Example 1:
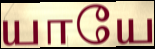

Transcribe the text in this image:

யாயே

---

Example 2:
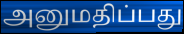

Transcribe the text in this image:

அனுமதிப்பது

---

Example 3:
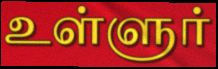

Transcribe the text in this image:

உள்ளுர்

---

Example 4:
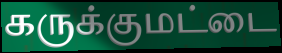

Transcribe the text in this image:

கருக்குமட்டை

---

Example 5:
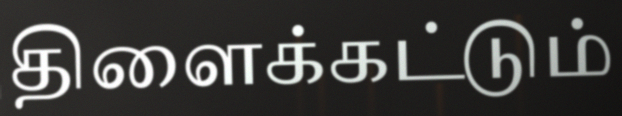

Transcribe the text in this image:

திளைக்கட்டும்